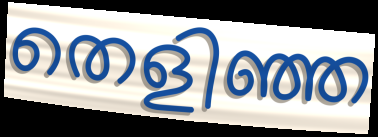
തെളിഞ്ഞ